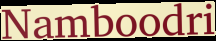
Namboodri